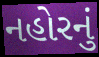
નહોરનું